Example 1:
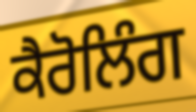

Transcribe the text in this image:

ਕੈਰੋਲਿੰਗ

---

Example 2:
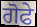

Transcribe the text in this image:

ਗੋਫੇ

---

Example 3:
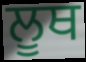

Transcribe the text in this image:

ਲੂਥ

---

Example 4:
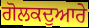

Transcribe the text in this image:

ਗੋਲਕਦੁਆਰੇ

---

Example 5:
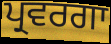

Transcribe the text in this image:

ਪ੍ਰਵਰਗਾ